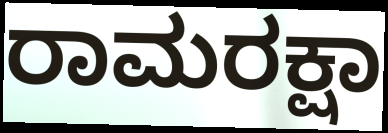
ರಾಮರಕ್ಷಾ